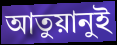
আতুয়ানুই